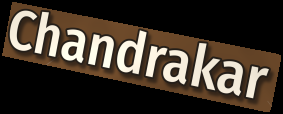
Chandrakar